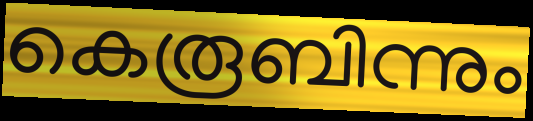
കെരൂബിന്നും